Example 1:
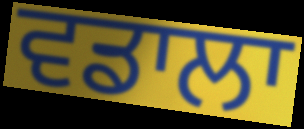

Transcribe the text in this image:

ਵਡਾਲਾ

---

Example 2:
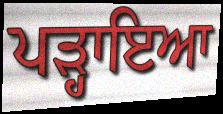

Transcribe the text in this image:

ਪੜ੍ਹਾਇਆ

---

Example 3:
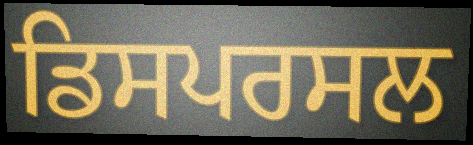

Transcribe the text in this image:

ਡਿਸਪਰਸਲ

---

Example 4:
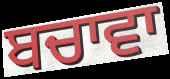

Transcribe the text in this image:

ਬਚਾਵਾ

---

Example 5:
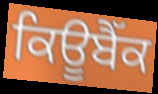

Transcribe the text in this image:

ਕਿਊਬੈੱਕ